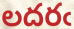
లదరఁ